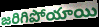
జరిగిపోయాయి